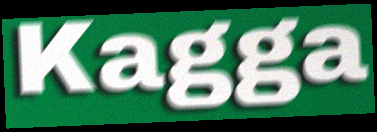
Kagga